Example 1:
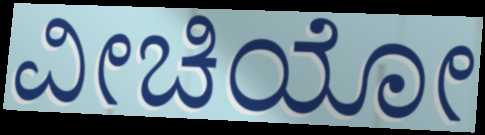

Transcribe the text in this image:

ವೀಚಿಯೋ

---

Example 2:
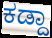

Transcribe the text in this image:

ಕಡ್ದಾ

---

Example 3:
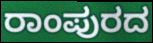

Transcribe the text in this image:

ರಾಂಪುರದ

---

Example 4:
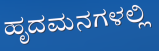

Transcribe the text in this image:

ಹೃದಮನಗಳಲ್ಲಿ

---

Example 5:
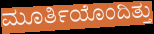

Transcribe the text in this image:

ಮೂರ್ತಿಯೊಂದಿತ್ತು